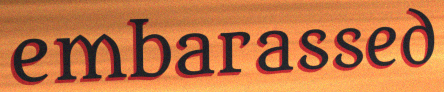
embarassed